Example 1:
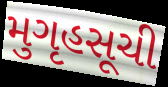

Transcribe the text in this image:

મુગૃહસૂચી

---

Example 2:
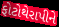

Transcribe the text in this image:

ફોટોથેરાપીને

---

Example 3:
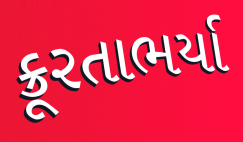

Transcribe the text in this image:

ક્રૂરતાભર્યા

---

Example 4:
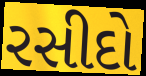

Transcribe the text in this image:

રસીદો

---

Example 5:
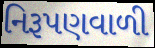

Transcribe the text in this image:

નિરૂપણવાળી